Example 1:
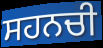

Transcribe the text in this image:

ਸਹਨਚੀ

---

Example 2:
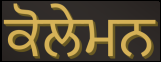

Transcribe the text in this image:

ਕੋਲੇਮਨ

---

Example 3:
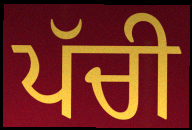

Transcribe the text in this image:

ਪੱਚੀ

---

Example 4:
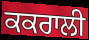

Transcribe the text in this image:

ਕਕਰਾਲੀ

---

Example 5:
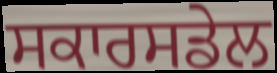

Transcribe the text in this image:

ਸਕਾਰਸਡੇਲ